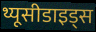
थ्यूसीडाइड्स